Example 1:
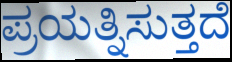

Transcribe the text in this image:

ಪ್ರಯತ್ನಿಸುತ್ತದೆ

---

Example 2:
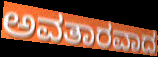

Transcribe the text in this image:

ಅವತಾರವಾದ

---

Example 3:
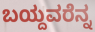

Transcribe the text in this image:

ಬಯ್ದವರೆನ್ನ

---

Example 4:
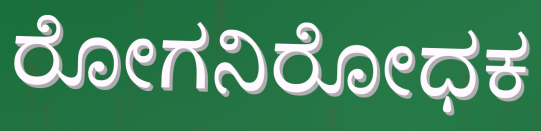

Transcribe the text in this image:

ರೋಗನಿರೋಧಕ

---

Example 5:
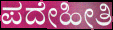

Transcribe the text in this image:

ಪದೇಹೀತಿ